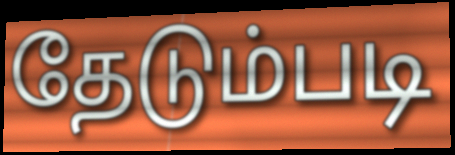
தேடும்படி